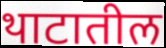
थाटातील